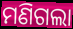
ମଣିଗଲା